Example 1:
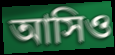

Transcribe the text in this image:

আসিও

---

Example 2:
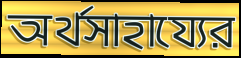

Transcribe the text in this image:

অর্থসাহায্যের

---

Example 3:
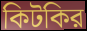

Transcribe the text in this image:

কিটকির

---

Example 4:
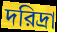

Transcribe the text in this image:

দরিদ্রা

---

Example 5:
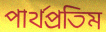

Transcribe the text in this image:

পার্থপ্রতিম